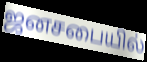
ஜனசபையில்